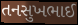
તનસુખભાઈ